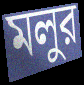
মলুর